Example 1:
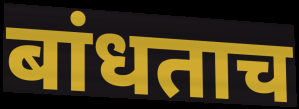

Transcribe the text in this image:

बांधताच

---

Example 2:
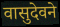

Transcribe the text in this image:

वासुदेवने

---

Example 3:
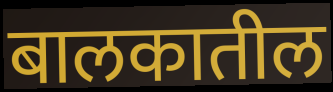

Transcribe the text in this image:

बालकातील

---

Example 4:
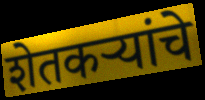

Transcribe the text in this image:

शेतकऱ्यांचे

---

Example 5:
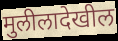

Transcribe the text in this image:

मुलीलादेखील